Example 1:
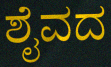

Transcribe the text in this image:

ಶೈವದ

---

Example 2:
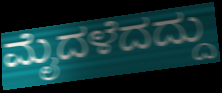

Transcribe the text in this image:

ಮೈದಳೆದದ್ದು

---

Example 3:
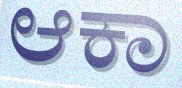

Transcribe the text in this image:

ಆಕಾ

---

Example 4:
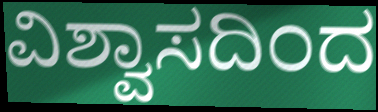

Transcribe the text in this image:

ವಿಶ್ವಾಸದಿಂದ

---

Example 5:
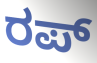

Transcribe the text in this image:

ರಪ್